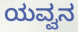
ಯವ್ವನ